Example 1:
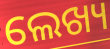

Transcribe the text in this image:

ଲେଖ୍ୟ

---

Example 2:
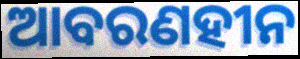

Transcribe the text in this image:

ଆବରଣହୀନ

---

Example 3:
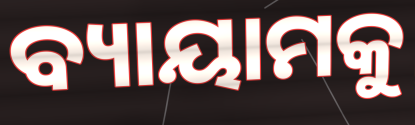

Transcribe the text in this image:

ବ୍ୟାୟାମକୁ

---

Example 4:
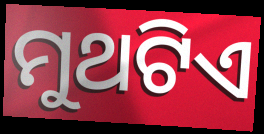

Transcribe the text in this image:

ମୁଥଟିଏ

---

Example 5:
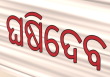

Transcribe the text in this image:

ଘଷିଦେବ